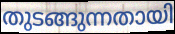
തുടങ്ങുന്നതായി